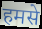
हमसे